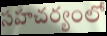
సహచర్యంలో